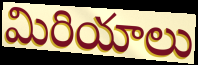
మిరియాలు